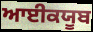
ਆਈਕਯੂਬ